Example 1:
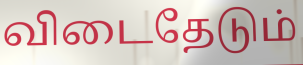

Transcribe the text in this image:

விடைதேடும்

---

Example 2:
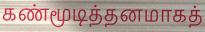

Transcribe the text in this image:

கண்மூடித்தனமாகத்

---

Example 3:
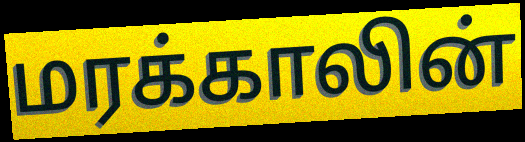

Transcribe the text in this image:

மரக்காலின்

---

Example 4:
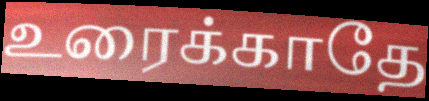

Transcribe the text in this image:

உரைக்காதே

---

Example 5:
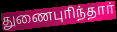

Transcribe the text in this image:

துணைபுரிந்தார்